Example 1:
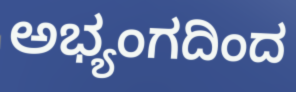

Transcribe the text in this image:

ಅಭ್ಯಂಗದಿಂದ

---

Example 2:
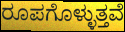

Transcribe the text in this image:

ರೂಪಗೊಳ್ಳುತ್ತವೆ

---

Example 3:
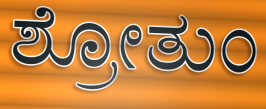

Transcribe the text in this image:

ಶ್ರೋತುಂ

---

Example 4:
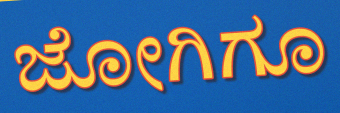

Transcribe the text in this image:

ಜೋಗಿಗೂ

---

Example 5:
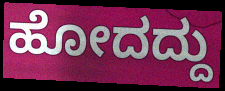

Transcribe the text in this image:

ಹೋದದ್ದು